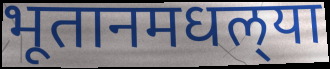
भूतानमधल्या